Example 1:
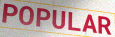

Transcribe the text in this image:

POPULAR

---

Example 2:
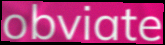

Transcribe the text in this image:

obviate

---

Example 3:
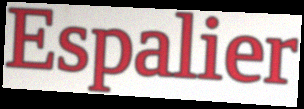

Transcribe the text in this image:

Espalier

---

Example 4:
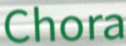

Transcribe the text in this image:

Chora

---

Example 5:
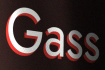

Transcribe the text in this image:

Gass